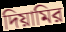
দিয়ামির